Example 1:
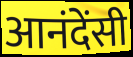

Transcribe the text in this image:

आनंदेंसी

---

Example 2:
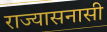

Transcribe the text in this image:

राज्यासनासी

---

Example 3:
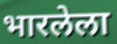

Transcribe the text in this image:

भारलेला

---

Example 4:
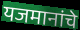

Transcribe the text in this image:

यजमानांचे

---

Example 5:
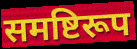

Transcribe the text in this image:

समष्टिरूप